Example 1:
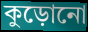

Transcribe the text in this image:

কুড়োনো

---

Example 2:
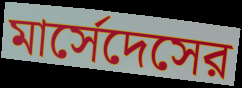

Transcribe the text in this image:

মার্সেদেসের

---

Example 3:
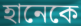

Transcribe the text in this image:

হানেকে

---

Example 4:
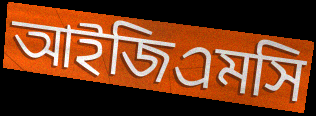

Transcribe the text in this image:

আইজিএমসি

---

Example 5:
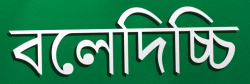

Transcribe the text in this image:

বলেদিচ্চি